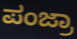
ಪಂಜ್ರಾ